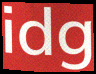
idg